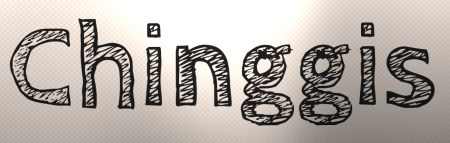
Chinggis